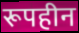
रूपहीन